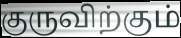
குருவிற்கும்